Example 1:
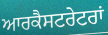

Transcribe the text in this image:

ਆਰਕੈਸਟਰੇਟਰਾਂ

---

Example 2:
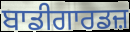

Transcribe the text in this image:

ਬਾਡੀਗਾਰਡਜ਼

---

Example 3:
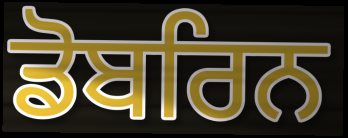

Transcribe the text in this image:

ਡੋਬਰਿਨ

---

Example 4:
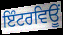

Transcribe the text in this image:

ਇੰਟਰਵਿਊਂ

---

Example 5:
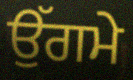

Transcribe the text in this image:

ਉੱਗਮੇ